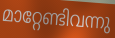
മാറ്റേണ്ടിവന്നു